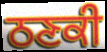
ਠਣਕੀ